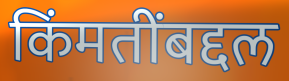
किंमतींबद्दल